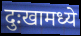
दुःखामध्ये